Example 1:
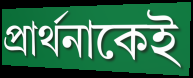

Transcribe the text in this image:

প্রার্থনাকেই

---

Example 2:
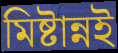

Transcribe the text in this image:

মিষ্টান্নই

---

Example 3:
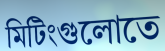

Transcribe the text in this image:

মিটিংগুলোতে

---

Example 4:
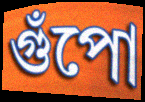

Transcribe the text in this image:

গুঁপো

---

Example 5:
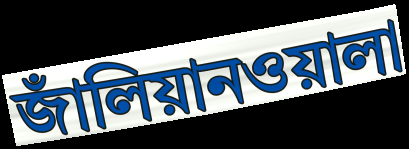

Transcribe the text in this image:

জাঁলিয়ানওয়ালা